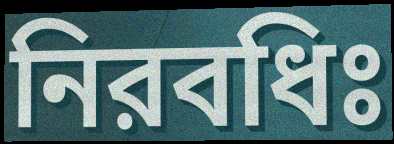
নিরবধিঃ